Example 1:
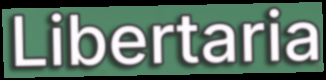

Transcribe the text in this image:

Libertaria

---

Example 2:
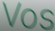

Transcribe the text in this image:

Vos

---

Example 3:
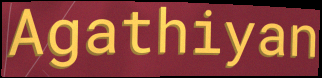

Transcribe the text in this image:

Agathiyan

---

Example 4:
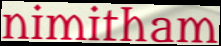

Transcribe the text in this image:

nimitham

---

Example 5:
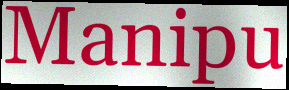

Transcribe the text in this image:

Manipu